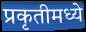
प्रकृतीमध्ये